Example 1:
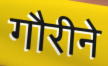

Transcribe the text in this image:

गौरीने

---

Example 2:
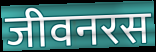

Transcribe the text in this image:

जीवनरस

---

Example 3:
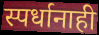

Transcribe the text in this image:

स्पर्धानाही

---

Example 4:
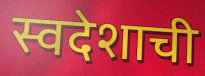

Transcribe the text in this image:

स्वदेशाची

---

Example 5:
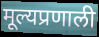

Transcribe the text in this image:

मूल्यप्रणाली